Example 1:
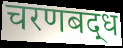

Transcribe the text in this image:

चरणबद्ध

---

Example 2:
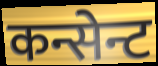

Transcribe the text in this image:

कन्सेन्ट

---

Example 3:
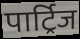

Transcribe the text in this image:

पार्ट्रिज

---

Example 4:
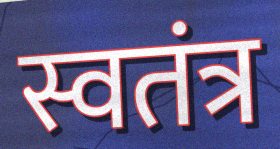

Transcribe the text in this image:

स्‍वतंत्र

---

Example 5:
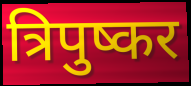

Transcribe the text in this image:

त्रिपुष्कर